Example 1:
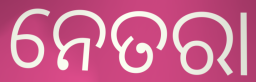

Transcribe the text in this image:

ନେତରା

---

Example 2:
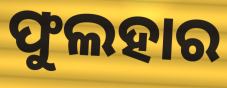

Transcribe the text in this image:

ଫୁଲହାର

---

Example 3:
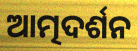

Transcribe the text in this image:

ଆତ୍ମଦର୍ଶନ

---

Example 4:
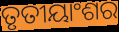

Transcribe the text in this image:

ତୃତୀୟାଂଶର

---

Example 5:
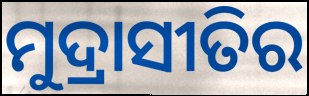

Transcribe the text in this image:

ମୁଦ୍ରାସୀତିର